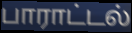
பாராட்டல்